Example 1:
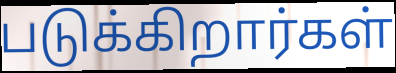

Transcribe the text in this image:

படுக்கிறார்கள்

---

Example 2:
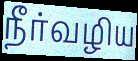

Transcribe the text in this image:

நீர்வழிய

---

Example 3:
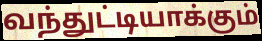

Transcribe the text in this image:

வந்துட்டியாக்கும்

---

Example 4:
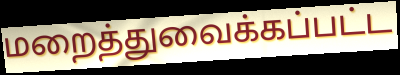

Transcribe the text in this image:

மறைத்துவைக்கப்பட்ட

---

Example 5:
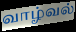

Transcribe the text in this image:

வாழ்வல்